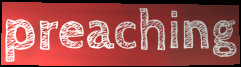
preaching